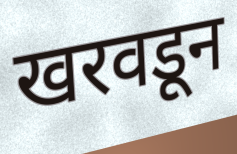
खरवडून